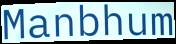
Manbhum